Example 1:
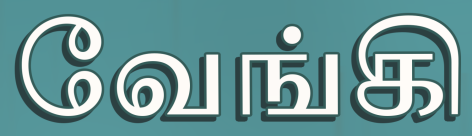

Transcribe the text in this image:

வேங்கி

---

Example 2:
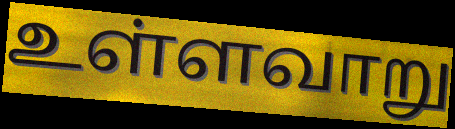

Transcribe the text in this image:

உள்ளவாறு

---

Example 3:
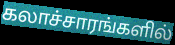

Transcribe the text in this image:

கலாச்சாரங்களில்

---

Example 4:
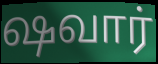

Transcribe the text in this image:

ஷவார்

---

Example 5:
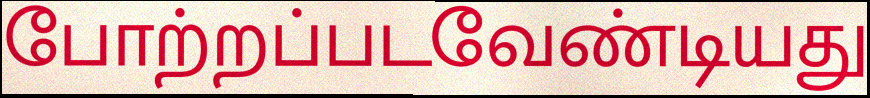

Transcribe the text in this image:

போற்றப்படவேண்டியது